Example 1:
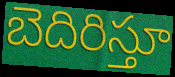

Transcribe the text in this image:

బెదిరిస్తూ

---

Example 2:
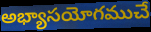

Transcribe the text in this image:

అభ్యాసయోగముచే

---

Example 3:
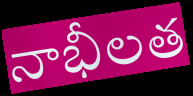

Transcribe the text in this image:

నాభీలత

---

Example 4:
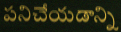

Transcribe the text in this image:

పనిచేయడాన్ని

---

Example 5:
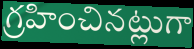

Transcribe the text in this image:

గ్రహించినట్లుగా